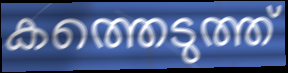
കത്തെടുത്ത്